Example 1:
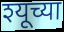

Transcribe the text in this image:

श्यूच्या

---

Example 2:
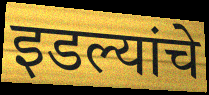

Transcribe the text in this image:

इडल्यांचे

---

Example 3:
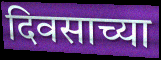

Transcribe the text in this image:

दिवसाच्या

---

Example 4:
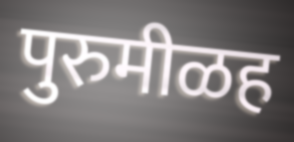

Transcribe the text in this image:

पुरुमीळह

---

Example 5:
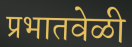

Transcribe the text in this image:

प्रभातवेळी